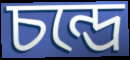
চন্দ্রে